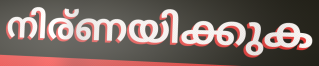
നിര്ണയിക്കുക